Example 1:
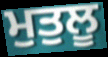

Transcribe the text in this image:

ਮੁਤੁਲੂ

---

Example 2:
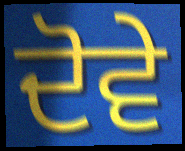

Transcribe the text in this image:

ਦੋਵੇ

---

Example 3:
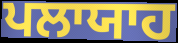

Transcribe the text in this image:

ਪਲਾਯਾਹ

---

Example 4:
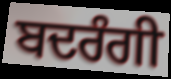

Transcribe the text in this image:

ਬਦਰੰਗੀ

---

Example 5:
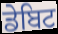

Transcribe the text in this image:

ਡੇਬਿਟ